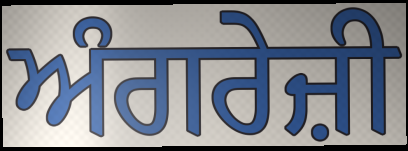
ਅੰਗਰੇਜ਼ੀ